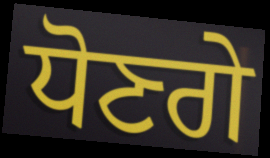
ਧੋਣਗੇ